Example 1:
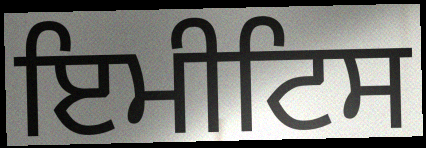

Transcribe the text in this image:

ਇਮੀਟਿਸ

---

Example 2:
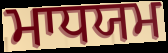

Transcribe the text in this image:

ਮਾਧਯਮ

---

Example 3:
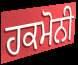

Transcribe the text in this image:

ਹਕਮੋਨੀ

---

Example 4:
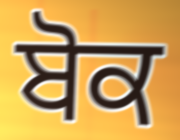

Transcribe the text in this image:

ਬੋਕ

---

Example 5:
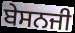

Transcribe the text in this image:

ਬੇਸਨਜੀ